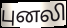
புனலி